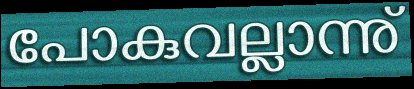
പോകുവല്ലാന്നു്